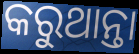
କରୁଥାନ୍ତା